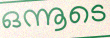
ഒന്നൂടെ